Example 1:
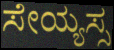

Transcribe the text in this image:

ಸೇಯ್ಯಸ್ಸ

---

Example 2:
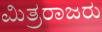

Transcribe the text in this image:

ಮಿತ್ರರಾಜರು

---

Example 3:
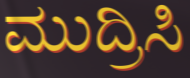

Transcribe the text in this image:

ಮುದ್ರಿಸಿ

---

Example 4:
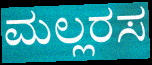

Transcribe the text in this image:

ಮಲ್ಲರಸ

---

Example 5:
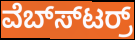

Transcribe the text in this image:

ವೆಬ್ಸ್‍ಟರ್ರ್